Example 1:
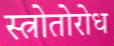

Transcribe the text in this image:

स्त्रोतोरोध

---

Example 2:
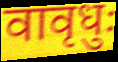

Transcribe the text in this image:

वावृधुः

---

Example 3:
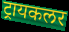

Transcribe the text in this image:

ट्रायकलर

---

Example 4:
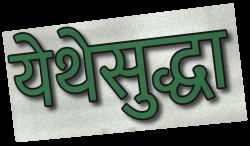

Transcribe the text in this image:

येथेसुद्धा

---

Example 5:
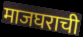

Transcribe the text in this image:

माजघराची